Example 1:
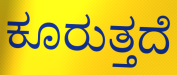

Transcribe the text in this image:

ಕೂರುತ್ತದೆ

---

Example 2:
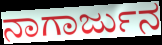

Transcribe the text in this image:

ನಾಗಾರ್ಜುನ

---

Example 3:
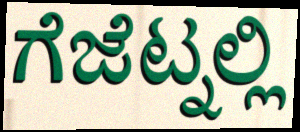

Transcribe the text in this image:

ಗೆಜೆಟ್ನಲ್ಲಿ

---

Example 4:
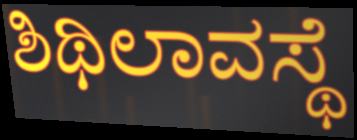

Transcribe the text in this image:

ಶಿಥಿಲಾವಸ್ಥೆ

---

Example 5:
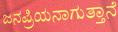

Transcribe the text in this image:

ಜನಪ್ರಿಯನಾಗುತ್ತಾನೆ